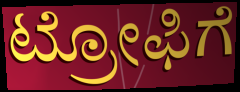
ಟ್ರೋಫಿಗೆ